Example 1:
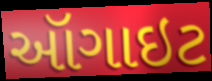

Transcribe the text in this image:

ઑગાઇટ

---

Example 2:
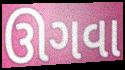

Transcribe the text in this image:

ઊગવા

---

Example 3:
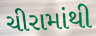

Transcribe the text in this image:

ચીરામાંથી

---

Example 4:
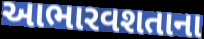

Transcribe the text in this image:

આભારવશતાના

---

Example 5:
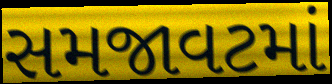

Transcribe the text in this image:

સમજાવટમાં